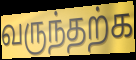
வருந்தற்க